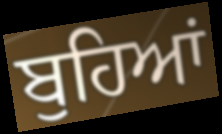
ਬੁਹਿਆਂ